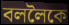
বললৈকে